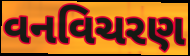
વનવિચરણ